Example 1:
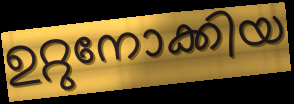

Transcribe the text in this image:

ഉറ്റുനോക്കിയ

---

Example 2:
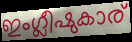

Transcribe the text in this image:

ഇംഗ്ലീഷുകാര്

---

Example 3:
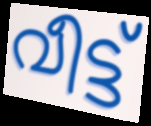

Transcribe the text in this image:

വീട്ട്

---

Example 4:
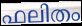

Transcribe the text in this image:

ഫലിതം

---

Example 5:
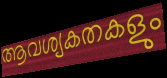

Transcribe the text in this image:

ആവശ്യകതകളും